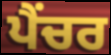
ਪੈਂਚਰ